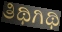
ತಿಥಿಗಿಥಿ